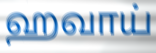
ஹவாய்